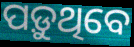
ପଡ଼ୁଥିବେ